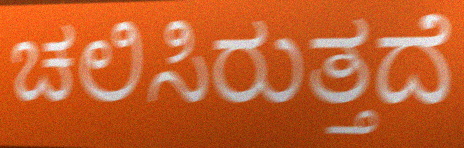
ಚಲಿಸಿರುತ್ತದೆ